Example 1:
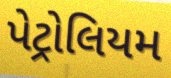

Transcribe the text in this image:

પેટ્રોલિયમ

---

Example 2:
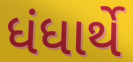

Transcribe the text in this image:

ધંધાર્થે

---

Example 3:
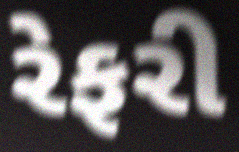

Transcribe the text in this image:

રેફરી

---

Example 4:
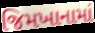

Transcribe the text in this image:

જિમખાનામાં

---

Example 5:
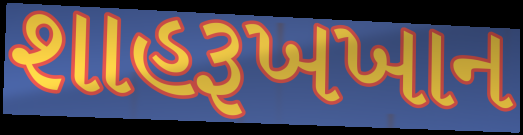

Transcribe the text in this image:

શાહરૂખખાન